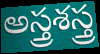
అస్త్రశస్త్ర